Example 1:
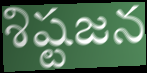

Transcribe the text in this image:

శిష్టజన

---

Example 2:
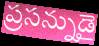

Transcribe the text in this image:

ప్రసన్నుడై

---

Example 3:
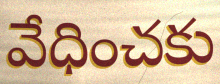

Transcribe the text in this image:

వేధించకు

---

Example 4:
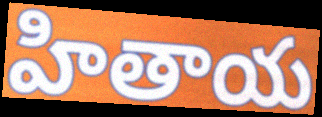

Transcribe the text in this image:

హితాయ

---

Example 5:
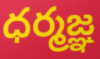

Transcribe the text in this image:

ధర్మజ్ఞ